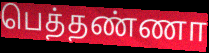
பெத்தண்ணா